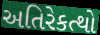
અતિરેકત્થો